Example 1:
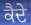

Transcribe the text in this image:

ਕੈਦੇ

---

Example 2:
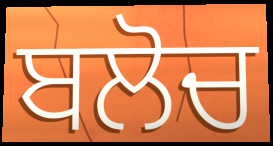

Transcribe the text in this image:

ਬਲੋਚ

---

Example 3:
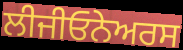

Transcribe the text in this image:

ਲੀਜੀਓਨੇਅਰਸ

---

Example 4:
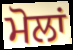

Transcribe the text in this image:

ਮੋਲਾਂ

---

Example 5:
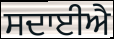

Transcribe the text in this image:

ਸਦਾਈਐ